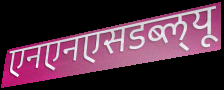
एनएनएसडब्ल्यू